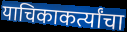
याचिकाकर्त्यांचा